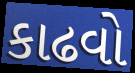
કાઢવો